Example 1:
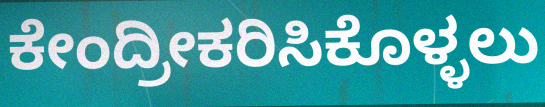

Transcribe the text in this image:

ಕೇಂದ್ರೀಕರಿಸಿಕೊಳ್ಳಲು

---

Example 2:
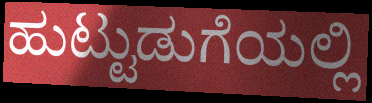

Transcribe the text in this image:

ಹುಟ್ಟುಡುಗೆಯಲ್ಲಿ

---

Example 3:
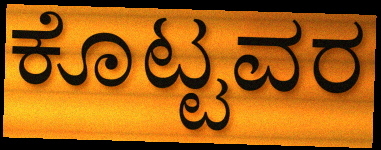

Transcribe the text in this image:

ಕೊಟ್ಟವರ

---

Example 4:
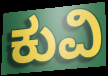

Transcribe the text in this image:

ಕುವಿ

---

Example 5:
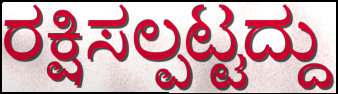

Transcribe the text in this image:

ರಕ್ಷಿಸಲ್ಪಟ್ಟದ್ದು